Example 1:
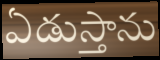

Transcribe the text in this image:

ఏడుస్తాను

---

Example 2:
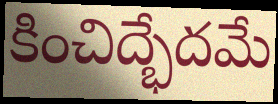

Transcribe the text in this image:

కించిద్భేదమే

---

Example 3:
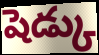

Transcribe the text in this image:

షెడ్కు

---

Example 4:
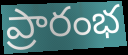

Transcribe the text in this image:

ప్రారంభ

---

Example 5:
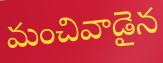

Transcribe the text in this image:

మంచివాడైన